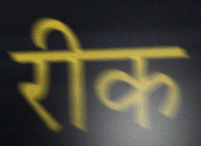
रीक